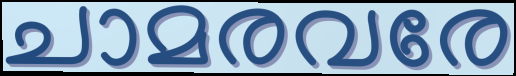
ചാമരവരേ